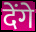
देंगे